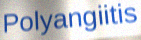
Polyangiitis